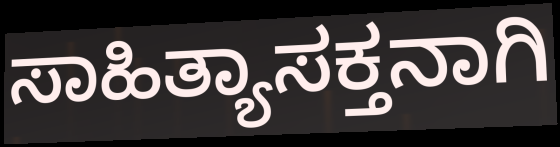
ಸಾಹಿತ್ಯಾಸಕ್ತನಾಗಿ